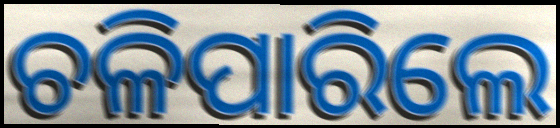
ଚଳିପାରିଲେ